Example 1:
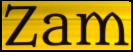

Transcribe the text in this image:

Zam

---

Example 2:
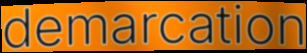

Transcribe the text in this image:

demarcation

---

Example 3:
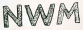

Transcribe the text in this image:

NWM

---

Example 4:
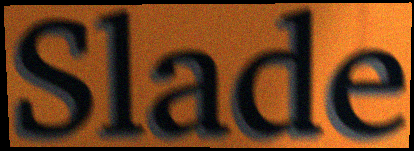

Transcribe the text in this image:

Slade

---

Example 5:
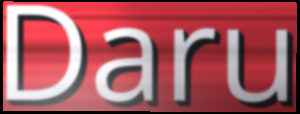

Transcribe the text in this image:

Daru